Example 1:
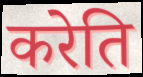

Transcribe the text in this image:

करेति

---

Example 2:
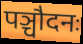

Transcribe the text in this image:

पञ्चौदनः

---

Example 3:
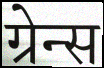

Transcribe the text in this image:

ग्रेन्स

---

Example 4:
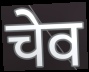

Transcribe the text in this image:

चेव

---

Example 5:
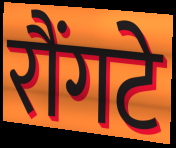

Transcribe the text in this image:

रौंगटे